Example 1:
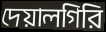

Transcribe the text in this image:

দেয়ালগিরি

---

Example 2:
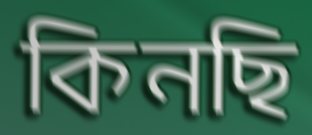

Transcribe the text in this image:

কিনছি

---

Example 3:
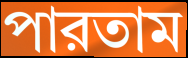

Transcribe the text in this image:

পারতাম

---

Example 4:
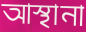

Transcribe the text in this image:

আস্থানা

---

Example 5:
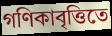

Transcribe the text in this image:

গণিকাবৃত্তিতে